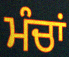
ਮੰਚਾਂ